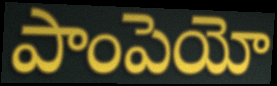
పాంపెయో